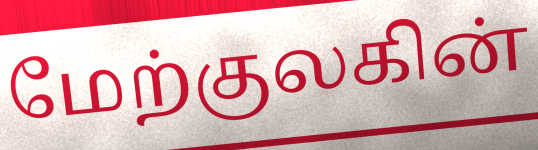
மேற்குலகின்